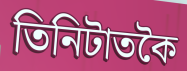
তিনিটাতকৈ